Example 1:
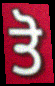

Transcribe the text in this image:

ਤੋ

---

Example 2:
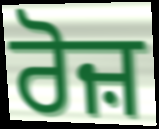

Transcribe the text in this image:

ਰੋਜ਼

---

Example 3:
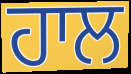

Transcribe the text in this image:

ਹਾਲ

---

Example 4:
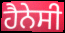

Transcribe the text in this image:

ਹੈਨੇਸੀ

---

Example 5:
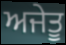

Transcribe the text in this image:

ਅਜੇਤੂ